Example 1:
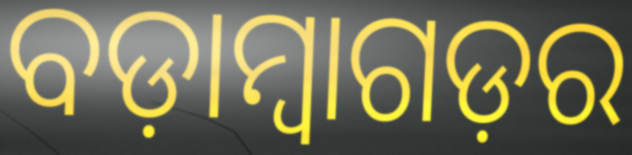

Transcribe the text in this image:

ବଡ଼ାମ୍ବାଗଡ଼ର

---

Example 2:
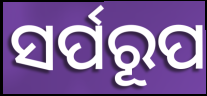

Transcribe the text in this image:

ସର୍ପରୂପ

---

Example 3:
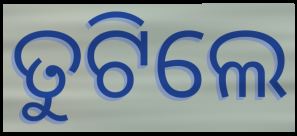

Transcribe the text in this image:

ତୁଟିଲେ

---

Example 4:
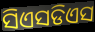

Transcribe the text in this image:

ସିଏସଡିଏସ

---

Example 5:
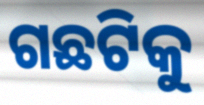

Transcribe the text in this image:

ଗଛଟିକୁ